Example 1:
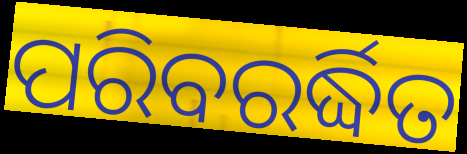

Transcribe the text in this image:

ପରିବରର୍ଦ୍ଧିତ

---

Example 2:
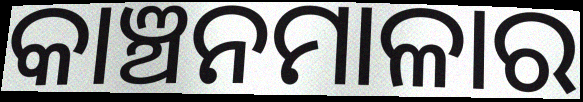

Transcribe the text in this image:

କାଞ୍ଚନମାଳାର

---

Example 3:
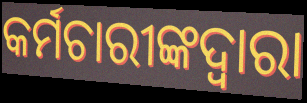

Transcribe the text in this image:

କର୍ମଚାରୀଙ୍କଦ୍ୱାରା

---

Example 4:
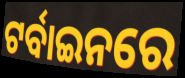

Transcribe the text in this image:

ଟର୍ବାଇନରେ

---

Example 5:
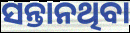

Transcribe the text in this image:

ସନ୍ତାନଥିବା